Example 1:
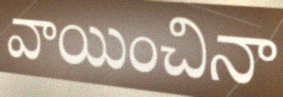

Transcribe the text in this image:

వాయించినా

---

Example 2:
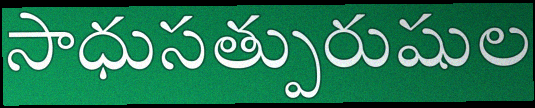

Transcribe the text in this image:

సాధుసత్పురుషుల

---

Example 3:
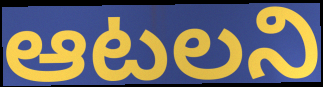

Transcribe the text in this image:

ఆటలని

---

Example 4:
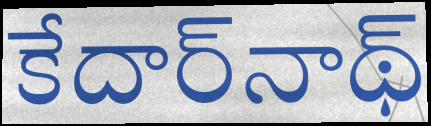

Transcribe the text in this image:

కేదార్‌నాథ్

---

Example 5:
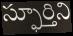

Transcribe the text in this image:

స్ఫూర్తిని